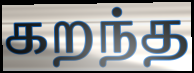
கறந்த